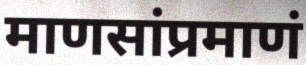
माणसांप्रमाणं